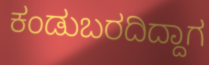
ಕಂಡುಬರದಿದ್ದಾಗ